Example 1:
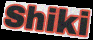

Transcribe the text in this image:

Shiki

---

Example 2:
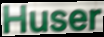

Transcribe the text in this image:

Huser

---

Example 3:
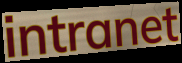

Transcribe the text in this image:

intranet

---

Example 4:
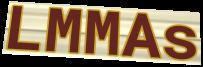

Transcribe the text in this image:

LMMAs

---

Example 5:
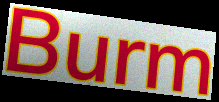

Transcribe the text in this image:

Burm